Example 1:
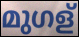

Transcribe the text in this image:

മുഗള്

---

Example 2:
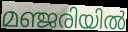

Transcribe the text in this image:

മഞ്ജരിയിൽ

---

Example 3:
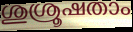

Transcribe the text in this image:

ശുശ്രൂഷതാം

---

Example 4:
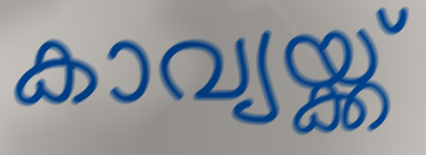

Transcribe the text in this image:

കാവ്യയ്ക്ക്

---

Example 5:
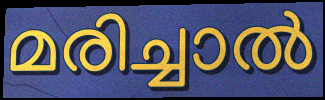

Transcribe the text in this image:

മരിച്ചാൽ